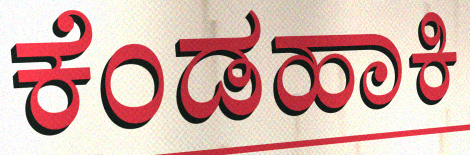
ಕೆಂಡಹಾಕಿ